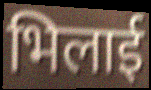
भिलाई